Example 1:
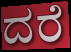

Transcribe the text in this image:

ದರೆ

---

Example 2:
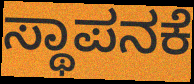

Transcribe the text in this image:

ಸ್ಥಾಪನಕೆ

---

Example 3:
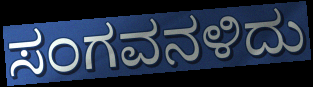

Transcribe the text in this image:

ಸಂಗವನಳಿದು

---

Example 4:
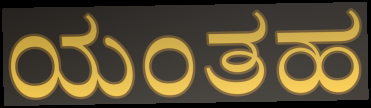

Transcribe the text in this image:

ಯಂತಹ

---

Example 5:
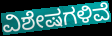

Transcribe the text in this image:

ವಿಶೇಷಗಳಿವೆ